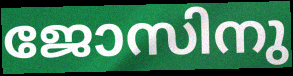
ജോസിനു